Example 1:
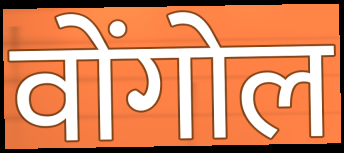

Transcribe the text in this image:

वोंगोल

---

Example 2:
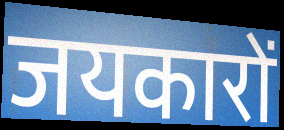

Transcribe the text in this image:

जयकारों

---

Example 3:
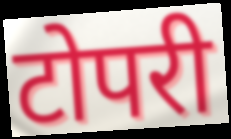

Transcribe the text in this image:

टोपरी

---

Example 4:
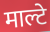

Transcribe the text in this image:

माल्टे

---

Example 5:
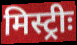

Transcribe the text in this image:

मिस्ट्रीः